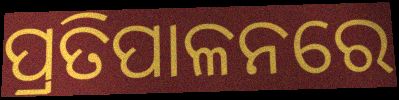
ପ୍ରତିପାଳନରେ